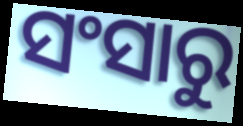
ସଂସାରୁ